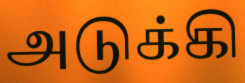
அடுக்கி